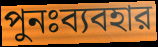
পুনঃব্যবহার